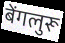
बेंगलुरू